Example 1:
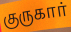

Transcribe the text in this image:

குருகார்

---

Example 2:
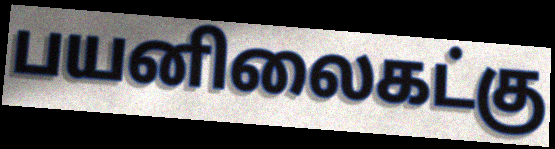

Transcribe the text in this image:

பயனிலைகட்கு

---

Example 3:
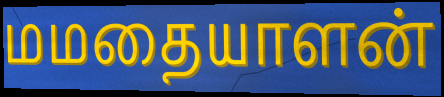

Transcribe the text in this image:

மமதையாளன்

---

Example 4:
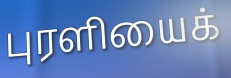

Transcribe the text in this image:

புரளியைக்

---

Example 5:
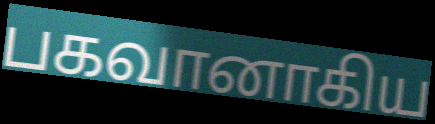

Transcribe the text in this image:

பகவானாகிய